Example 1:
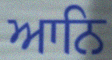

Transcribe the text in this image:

ਆਨਿ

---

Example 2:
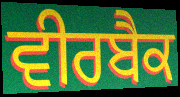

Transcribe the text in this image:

ਵੀਰਬੈਕ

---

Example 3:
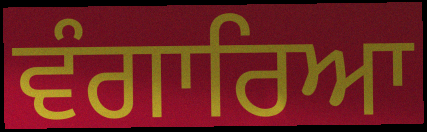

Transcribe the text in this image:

ਵੰਗਾਰਿਆ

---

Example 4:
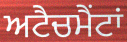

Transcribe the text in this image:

ਅਟੈਚਮੈਂਟਾਂ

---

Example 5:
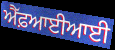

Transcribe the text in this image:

ਐੱਫ਼ਆਈਆਈ